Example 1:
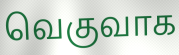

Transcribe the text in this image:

வெகுவாக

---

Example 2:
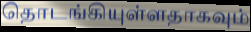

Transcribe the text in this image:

தொடங்கியுள்ளதாகவும்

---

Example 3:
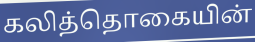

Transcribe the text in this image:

கலித்தொகையின்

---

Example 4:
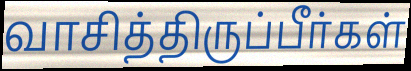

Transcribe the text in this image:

வாசித்திருப்பீர்கள்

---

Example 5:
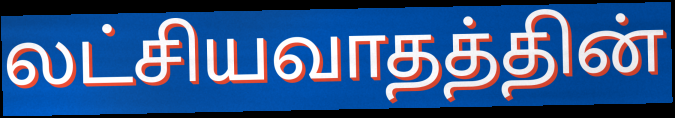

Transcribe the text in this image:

லட்சியவாதத்தின்